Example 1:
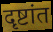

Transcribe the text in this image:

दृष्टांत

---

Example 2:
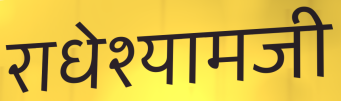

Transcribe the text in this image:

राधेश्यामजी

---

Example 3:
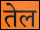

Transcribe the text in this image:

तेल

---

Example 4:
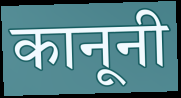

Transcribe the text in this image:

कानूनी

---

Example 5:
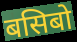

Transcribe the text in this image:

बसिबो